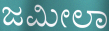
ಜಮೀಲಾ